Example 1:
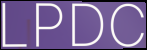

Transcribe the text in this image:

LPDC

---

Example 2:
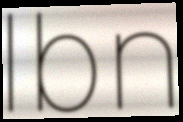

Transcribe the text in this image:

lbn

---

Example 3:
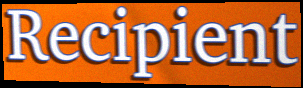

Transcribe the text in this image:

Recipient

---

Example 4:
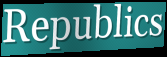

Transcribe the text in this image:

Republics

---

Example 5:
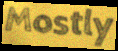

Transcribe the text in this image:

Mostly